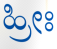
ಹ್ರೀಃ